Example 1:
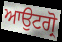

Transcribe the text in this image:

ਆਉਟਗ੍ਰੋ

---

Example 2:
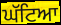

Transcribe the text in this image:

ਘੱਟਿਆ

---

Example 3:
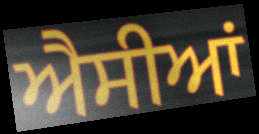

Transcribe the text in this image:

ਐਸੀਆਂ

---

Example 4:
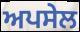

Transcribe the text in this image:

ਅਪਸੇਲ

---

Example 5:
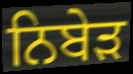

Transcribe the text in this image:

ਨਿਬੇੜ